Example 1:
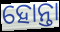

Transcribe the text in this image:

ହୋନ୍ତା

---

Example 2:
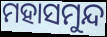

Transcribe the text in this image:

ମହାସମୁନ୍ଦ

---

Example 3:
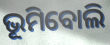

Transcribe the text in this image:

ଭୂମିବୋଲି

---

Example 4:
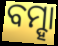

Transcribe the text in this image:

ବମ୍ହା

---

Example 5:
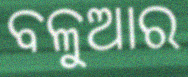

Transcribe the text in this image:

ବଳୁଆର